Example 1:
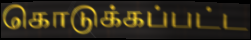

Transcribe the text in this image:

கொடுக்கப்பட்ட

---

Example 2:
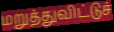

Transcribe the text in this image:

மறுத்துவிட்டுச்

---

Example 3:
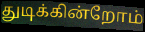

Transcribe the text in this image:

துடிக்கின்றோம்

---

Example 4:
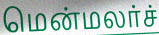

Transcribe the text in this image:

மென்மலர்ச்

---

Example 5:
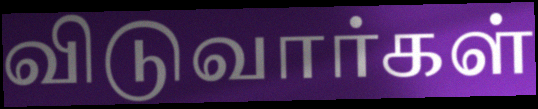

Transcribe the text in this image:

விடுவார்கள்